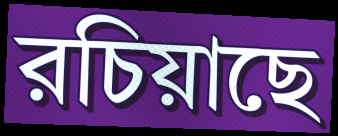
রচিয়াছে